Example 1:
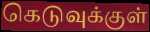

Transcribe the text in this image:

கெடுவுக்குள்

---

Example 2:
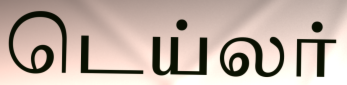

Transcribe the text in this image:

டெய்லர்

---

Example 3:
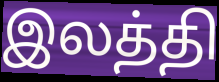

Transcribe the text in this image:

இலத்தி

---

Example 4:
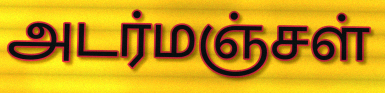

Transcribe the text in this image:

அடர்மஞ்சள்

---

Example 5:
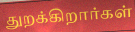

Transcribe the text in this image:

துறக்கிறார்கள்